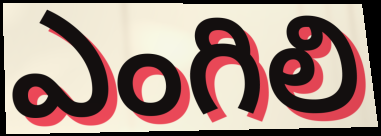
ఎంగిలి